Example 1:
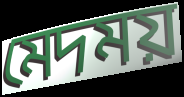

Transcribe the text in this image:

মেদময়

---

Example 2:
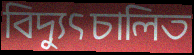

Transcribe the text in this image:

বিদ্যুৎচালিত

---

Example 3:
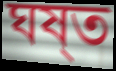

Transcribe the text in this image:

ঘষ্ত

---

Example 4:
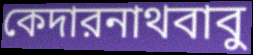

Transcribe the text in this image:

কেদারনাথবাবু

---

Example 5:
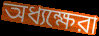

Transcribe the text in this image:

অধ্যক্ষেরা